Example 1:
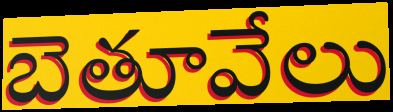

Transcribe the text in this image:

బెతూవేలు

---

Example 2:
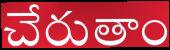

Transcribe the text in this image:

చేరుతాం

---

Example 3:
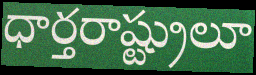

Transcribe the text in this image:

ధార్తరాష్ట్రులూ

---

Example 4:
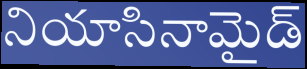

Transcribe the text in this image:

నియాసినామైడ్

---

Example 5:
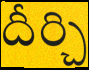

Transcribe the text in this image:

దీర్చి